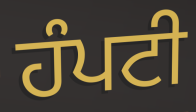
ਹੰਪਟੀ